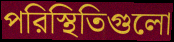
পরিস্থিতিগুলো